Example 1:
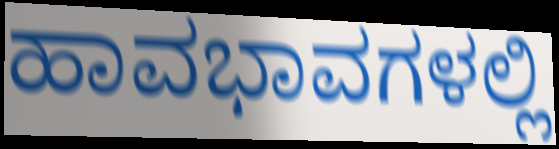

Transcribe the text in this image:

ಹಾವಭಾವಗಳಲ್ಲಿ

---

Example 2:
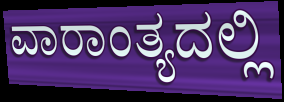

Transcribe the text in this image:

ವಾರಾಂತ್ಯದಲ್ಲಿ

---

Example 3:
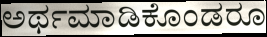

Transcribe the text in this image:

ಅರ್ಥಮಾಡಿಕೊಂಡರೂ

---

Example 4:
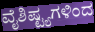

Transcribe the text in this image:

ವೈಶಿಷ್ಟ್ಯಗಳಿಂದ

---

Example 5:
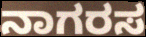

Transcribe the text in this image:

ನಾಗರಸ